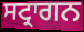
ਸਟ੍ਰਾਗਨ